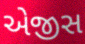
એજીસ